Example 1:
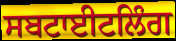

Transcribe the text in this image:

ਸਬਟਾਈਟਲਿੰਗ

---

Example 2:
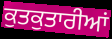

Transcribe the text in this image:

ਕੁਤਕੁਤਾਰੀਆਂ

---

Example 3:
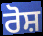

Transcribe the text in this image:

ਰੋਸ਼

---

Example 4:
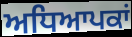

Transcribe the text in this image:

ਅਧਿਆਪਕਾਂ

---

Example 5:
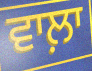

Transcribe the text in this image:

ਵਾਲ਼ਾ